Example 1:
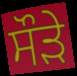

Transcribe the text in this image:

ਸੌੜੇ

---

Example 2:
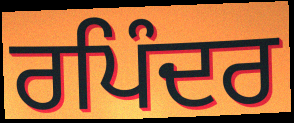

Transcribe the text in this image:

ਰਪਿੰਦਰ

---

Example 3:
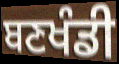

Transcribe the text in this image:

ਬਣਖੰਡੀ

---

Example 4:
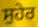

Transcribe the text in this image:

ਸੁਹੇਰ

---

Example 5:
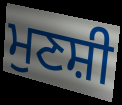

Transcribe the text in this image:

ਮੁਣਸ਼ੀ